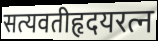
सत्यवतीहृदयरत्न